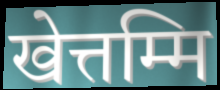
खेत्तम्मि